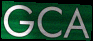
GCA